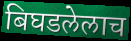
बिघडलेलाच